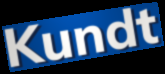
Kundt